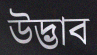
উদ্ভাব